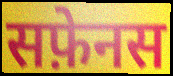
सफ़ेनस